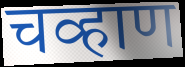
चव्हाण